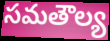
సమతౌల్య